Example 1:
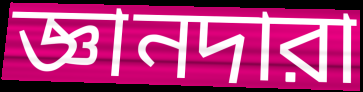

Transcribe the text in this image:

জ্ঞানদারা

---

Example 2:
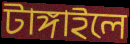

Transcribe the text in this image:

টাঙ্গাইলে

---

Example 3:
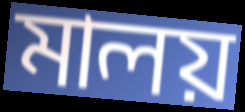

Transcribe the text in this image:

মালয়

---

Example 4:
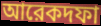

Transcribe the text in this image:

আরেকদফা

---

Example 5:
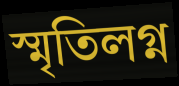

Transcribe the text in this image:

স্মৃতিলগ্ন